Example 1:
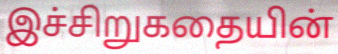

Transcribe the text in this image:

இச்சிறுகதையின்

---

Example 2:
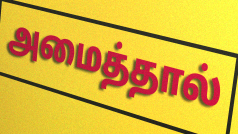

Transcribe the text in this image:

அமைத்தால்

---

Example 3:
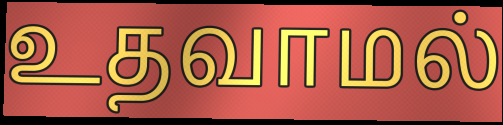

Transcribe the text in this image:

உதவாமல்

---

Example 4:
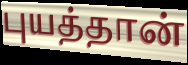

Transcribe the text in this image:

புயத்தான்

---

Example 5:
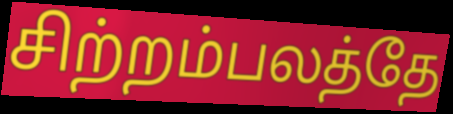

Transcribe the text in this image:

சிற்றம்பலத்தே